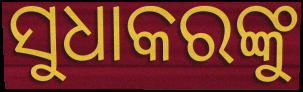
ସୁଧାକରଙ୍କୁ